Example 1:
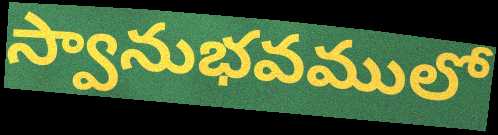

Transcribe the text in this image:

స్వానుభవములో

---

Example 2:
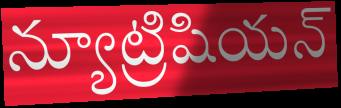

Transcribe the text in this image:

న్యూట్రిషియన్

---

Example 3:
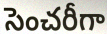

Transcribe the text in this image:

సెంచరీగా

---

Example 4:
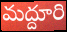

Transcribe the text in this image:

మద్దూరి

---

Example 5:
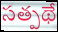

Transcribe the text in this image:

సత్పథే